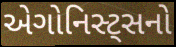
એગોનિસ્ટ્સનો